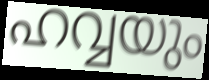
ഹവ്വയും